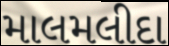
માલમલીદા